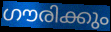
ഗൗരിക്കും